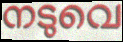
നടുവെ